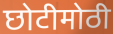
छोटीमोठी